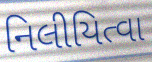
નિલીયિત્વા